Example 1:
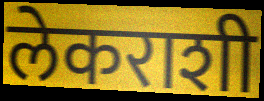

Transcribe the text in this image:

लेकराशी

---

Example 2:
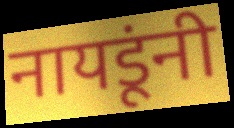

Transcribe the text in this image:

नायडूंनी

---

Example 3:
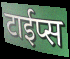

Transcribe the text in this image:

टाईप्स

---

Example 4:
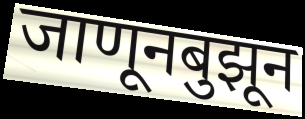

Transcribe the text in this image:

जाणूनबुझून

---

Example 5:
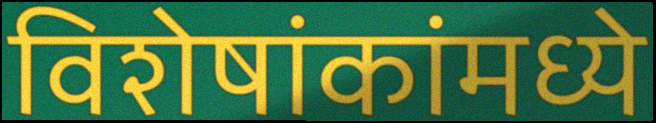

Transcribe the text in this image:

विशेषांकांमध्ये